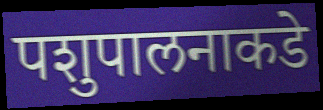
पशुपालनाकडे